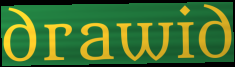
drawid